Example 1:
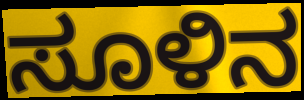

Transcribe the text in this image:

ಸೂಳಿನ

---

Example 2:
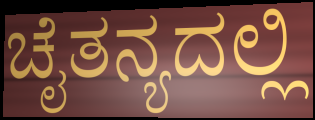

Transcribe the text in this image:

ಚೈತನ್ಯದಲ್ಲಿ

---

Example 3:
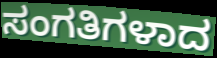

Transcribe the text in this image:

ಸಂಗತಿಗಳಾದ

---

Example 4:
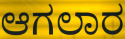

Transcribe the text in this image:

ಆಗಲಾರ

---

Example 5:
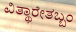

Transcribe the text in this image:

ವಿತ್ಥಾರೇತಬ್ಬಂ